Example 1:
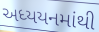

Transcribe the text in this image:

અધ્યયનમાંથી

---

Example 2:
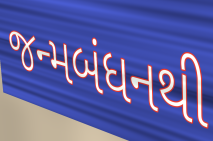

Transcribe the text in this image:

જન્મબંધનથી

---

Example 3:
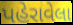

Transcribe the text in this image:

પહેરાવેલા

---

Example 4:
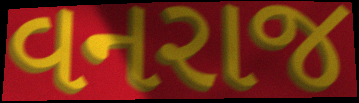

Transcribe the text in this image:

વનરાજ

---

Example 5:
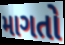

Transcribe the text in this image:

માગતો